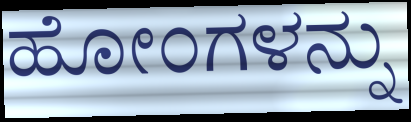
ಹೋಂಗಳನ್ನು